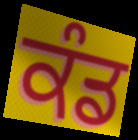
ਕੰਡ